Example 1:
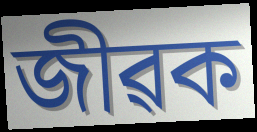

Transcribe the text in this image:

জীৱক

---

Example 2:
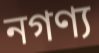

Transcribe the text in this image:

নগণ্য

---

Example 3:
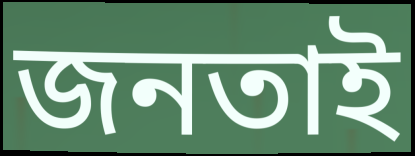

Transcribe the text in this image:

জনতাই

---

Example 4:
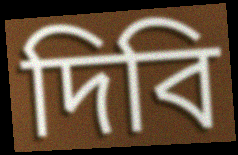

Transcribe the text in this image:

দিবি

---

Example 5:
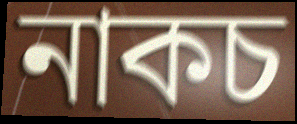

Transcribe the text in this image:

নাকচ